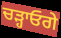
ਚੜ੍ਹਾਓਗੇ